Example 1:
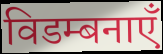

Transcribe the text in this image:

विडम्बनाएँ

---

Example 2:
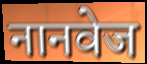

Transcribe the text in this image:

नानवेज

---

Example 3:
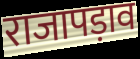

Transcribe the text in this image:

राजापड़ाव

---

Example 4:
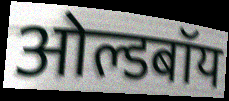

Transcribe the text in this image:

ओल्डबॉय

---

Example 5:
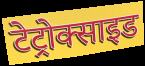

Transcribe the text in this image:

टेट्रोक्साइड